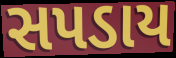
સપડાય